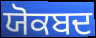
ਯੋਕਬਦ